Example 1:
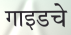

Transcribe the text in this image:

गाइडचे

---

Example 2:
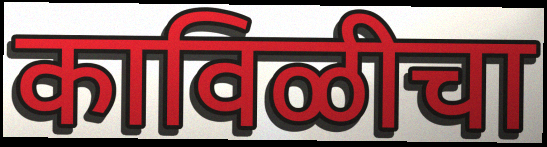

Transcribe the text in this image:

काविळीचा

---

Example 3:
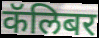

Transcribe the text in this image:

कॅलिबर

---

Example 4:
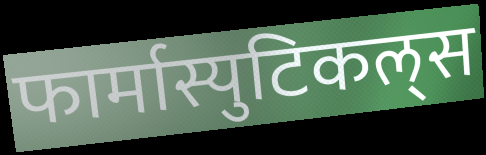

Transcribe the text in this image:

फार्मास्युटिकल्स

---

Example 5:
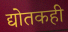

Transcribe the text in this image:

द्योतकही